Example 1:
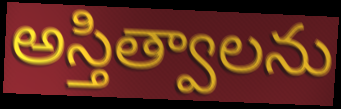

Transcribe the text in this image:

అస్తిత్వాలను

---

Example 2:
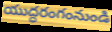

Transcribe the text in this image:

యుద్ధరంగంనుండి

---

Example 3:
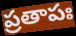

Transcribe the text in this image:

ప్రతాపః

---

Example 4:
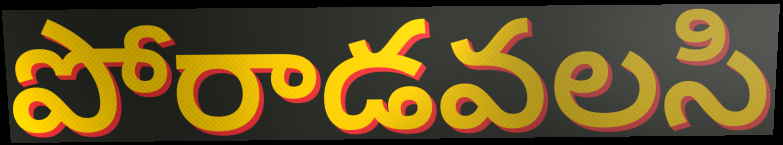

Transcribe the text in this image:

పోరాడవలసి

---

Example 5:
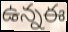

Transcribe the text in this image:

ఉన్నఈ